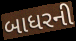
બાધરની